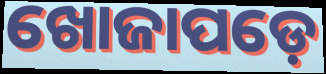
ଖୋଜାପଡ଼େ